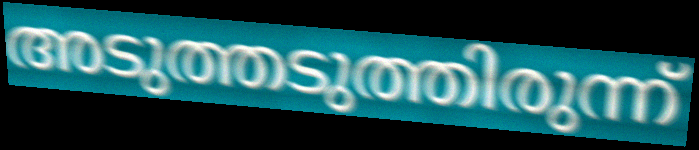
അടുത്തടുത്തിരുന്ന്